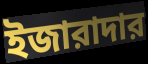
ইজারাদার